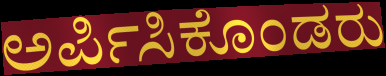
ಅರ್ಪಿಸಿಕೊಂಡರು